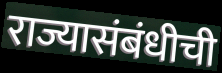
राज्यासंबंधीची